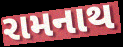
રામનાથ